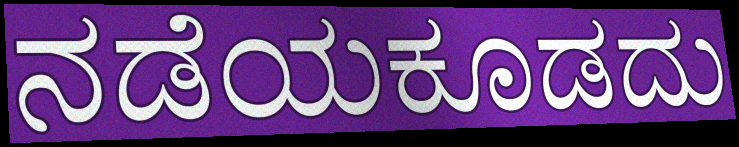
ನಡೆಯಕೂಡದು